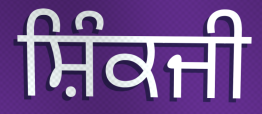
ਸ਼ਿੰਕਜੀ